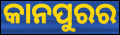
କାନପୁରର